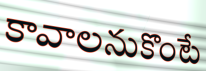
కావాలనుకొంటే